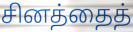
சினத்தைத்